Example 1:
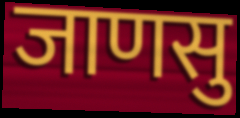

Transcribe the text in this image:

जाणसु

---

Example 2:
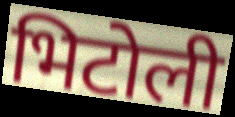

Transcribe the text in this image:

भिटोली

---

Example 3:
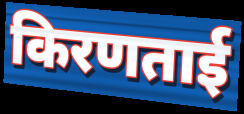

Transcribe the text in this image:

किरणताई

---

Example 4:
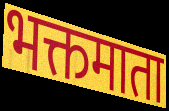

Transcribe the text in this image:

भक्तमाता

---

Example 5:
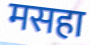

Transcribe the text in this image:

मसहा